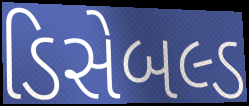
ડિસેબલ્ડ